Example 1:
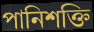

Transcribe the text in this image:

পানিশক্তি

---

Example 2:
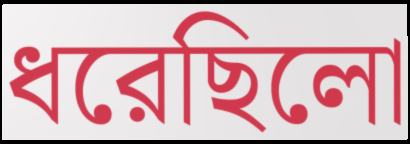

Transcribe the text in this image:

ধরেছিলো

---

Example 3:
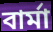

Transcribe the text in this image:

বার্মা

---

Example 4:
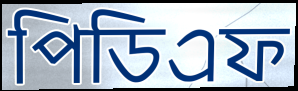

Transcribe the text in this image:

পিডিএফ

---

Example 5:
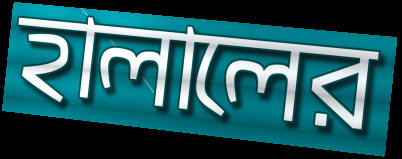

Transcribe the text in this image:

হালালের